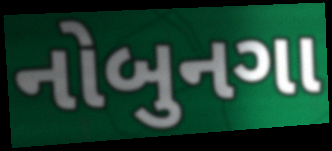
નોબુનગા